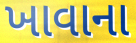
ખાવાના